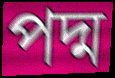
পদ্ম